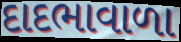
દાદભાવાળા